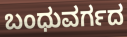
ಬಂಧುವರ್ಗದ